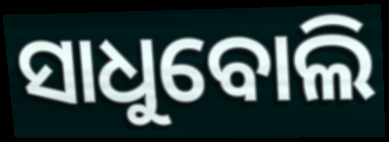
ସାଧୁବୋଲି